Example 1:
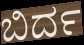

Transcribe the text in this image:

ಬಿರ್ದ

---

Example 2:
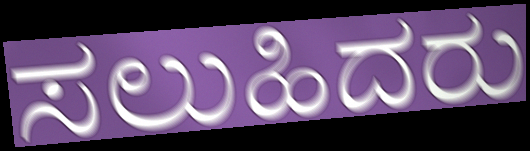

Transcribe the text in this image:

ಸಲುಹಿದರು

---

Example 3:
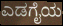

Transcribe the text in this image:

ಎಡಗೈಯ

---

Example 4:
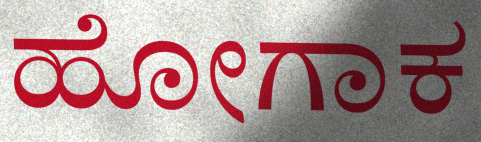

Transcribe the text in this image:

ಹೋಗಾಕ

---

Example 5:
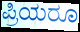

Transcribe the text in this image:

ಪ್ರಿಯರೂ